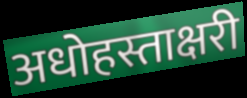
अधोहस्ताक्षरी